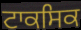
ਟਾਕਸਿਕ